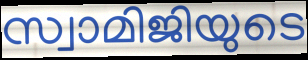
സ്വാമിജിയുടെ